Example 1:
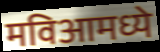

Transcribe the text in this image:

मविआमध्ये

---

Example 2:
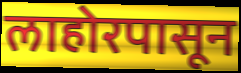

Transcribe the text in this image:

लाहोरपासून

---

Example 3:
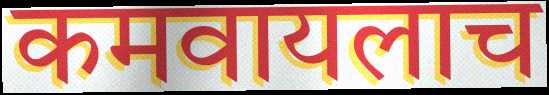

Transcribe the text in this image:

कमवायलाच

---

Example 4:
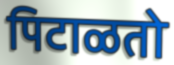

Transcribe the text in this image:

पिटाळतो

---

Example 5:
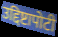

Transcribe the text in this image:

उद्दिष्टापोटी